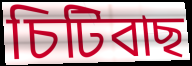
চিটিবাছ